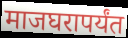
माजघरापर्यंत